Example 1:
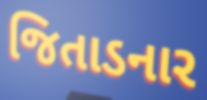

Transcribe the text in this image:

જિતાડનાર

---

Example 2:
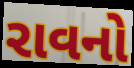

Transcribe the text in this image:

રાવનો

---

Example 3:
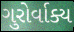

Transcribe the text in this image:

ગુરોર્વાક્ય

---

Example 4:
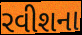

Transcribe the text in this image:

રવીશના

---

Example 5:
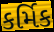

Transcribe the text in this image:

કર્મિક